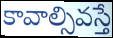
కావాల్సివస్తే